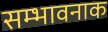
सम्भावनाक